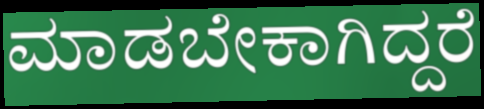
ಮಾಡಬೇಕಾಗಿದ್ದರೆ